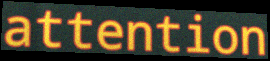
attention